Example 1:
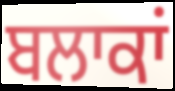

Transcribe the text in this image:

ਬਲਾਕਾਂ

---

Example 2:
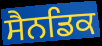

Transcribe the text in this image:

ਸੈਨਡਿਕ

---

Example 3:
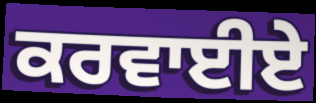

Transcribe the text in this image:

ਕਰਵਾਈਏ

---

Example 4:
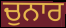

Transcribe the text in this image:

ਚੁਨਾਰ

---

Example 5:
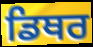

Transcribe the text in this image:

ਡਿਥਰ